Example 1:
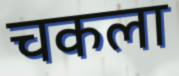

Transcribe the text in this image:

चकला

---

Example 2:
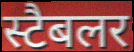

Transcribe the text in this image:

स्टैबलर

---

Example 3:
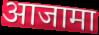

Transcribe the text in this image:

आजामा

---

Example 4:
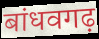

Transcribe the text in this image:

बांधवगढ़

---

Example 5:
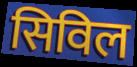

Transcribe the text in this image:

सिविल